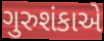
ગુરુશંકાએ